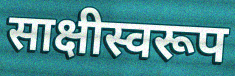
साक्षीस्वरूप